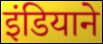
इंडियाने